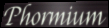
Phormium